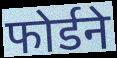
फोर्डने